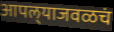
आपल्याजवळचं